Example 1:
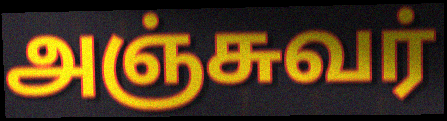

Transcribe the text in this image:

அஞ்சுவர்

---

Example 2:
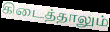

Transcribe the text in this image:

கிடைத்தாலும்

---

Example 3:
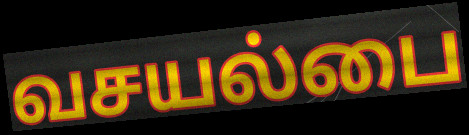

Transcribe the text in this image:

வசயல்பை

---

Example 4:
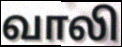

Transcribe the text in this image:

வாலி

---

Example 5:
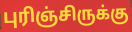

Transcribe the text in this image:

புரிஞ்சிருக்கு